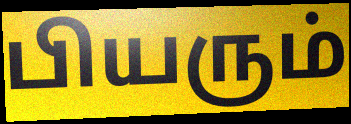
பியரும்